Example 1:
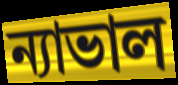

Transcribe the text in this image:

ন্যাভাল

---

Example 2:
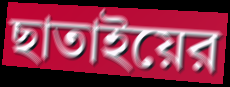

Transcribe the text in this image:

ছাতাইয়ের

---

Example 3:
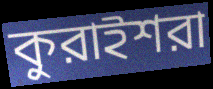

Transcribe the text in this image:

কুরাইশরা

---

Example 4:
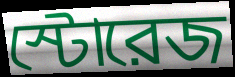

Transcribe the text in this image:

স্টোরেজ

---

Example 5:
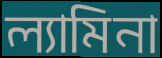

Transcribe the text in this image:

ল্যামিনা